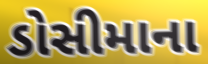
ડોસીમાના